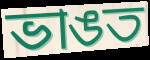
ভাঙত